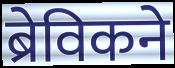
ब्रेविकने